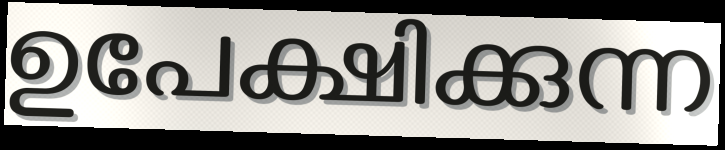
ഉപേക്ഷിക്കുന്ന